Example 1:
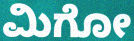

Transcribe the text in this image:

ಮಿಗೋ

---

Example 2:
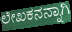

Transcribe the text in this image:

ಲೇಖಕನನ್ನಾಗಿ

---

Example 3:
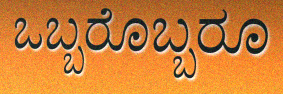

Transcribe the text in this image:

ಒಬ್ಬರೊಬ್ಬರೂ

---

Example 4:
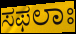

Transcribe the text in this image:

ಸಫಲಾಃ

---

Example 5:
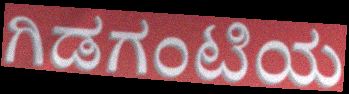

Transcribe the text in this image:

ಗಿಡಗಂಟಿಯ